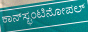
ಕಾನ್‍ಸ್ಟಂಟಿನೋಪಲ್